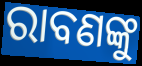
ରାବଣଙ୍କୁ